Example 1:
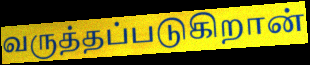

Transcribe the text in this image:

வருத்தப்படுகிறான்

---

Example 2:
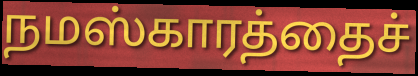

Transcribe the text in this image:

நமஸ்காரத்தைச்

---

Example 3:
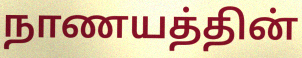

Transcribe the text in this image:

நாணயத்தின்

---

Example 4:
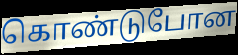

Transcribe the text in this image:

கொண்டுபோன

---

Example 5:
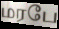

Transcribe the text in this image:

மரபே